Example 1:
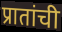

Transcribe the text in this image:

प्रातांची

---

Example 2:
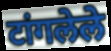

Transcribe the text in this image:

टांगलेले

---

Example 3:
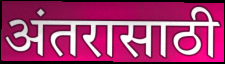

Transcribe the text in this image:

अंतरासाठी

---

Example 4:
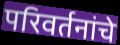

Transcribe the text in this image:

परिवर्तनांचे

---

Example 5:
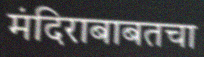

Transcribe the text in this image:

मंदिराबाबतचा